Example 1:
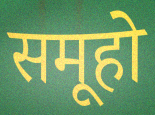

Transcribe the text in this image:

समूहो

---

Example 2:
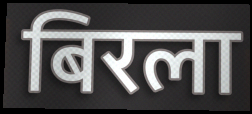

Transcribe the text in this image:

बिरला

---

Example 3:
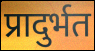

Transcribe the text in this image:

प्रादुर्भत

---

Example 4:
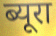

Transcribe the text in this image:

ब्यूरा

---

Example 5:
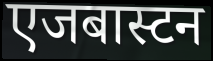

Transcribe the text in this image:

एजबास्टन